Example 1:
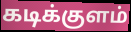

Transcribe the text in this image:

கடிக்குளம்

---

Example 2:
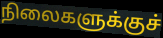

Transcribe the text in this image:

நிலைகளுக்குச்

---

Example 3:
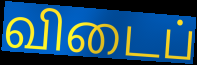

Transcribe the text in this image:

விடைப்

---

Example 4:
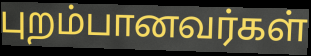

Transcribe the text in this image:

புறம்பானவர்கள்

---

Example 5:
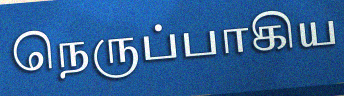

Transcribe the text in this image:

நெருப்பாகிய